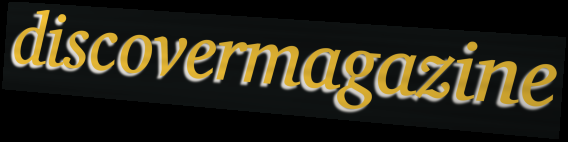
discovermagazine